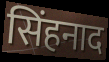
सिंहनाद